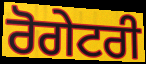
ਰੋਗੇਟਰੀ